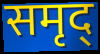
समृद्